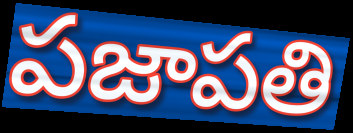
పజాపతి